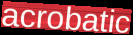
acrobatic